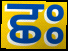
ਛਃ